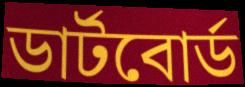
ডার্টবোর্ড